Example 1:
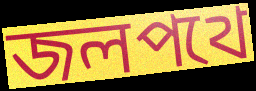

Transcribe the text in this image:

জলপথে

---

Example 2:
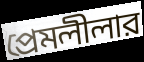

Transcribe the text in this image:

প্রেমলীলার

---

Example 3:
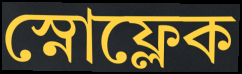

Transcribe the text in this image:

স্নোফ্লেক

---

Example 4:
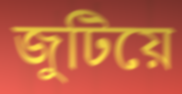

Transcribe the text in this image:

জুটিয়ে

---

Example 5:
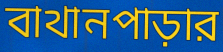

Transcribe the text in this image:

বাথানপাড়ার